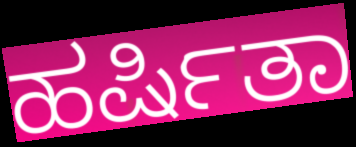
ಹರ್ಷಿತಾ